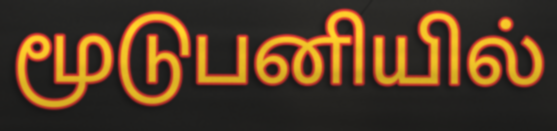
மூடுபனியில்